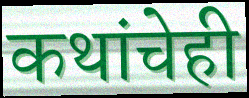
कथांचेही